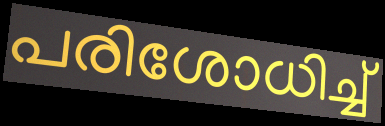
പരിശോധിച്ച്